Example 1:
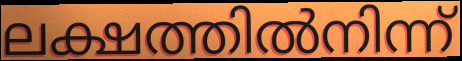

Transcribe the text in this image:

ലക്ഷത്തിൽനിന്ന്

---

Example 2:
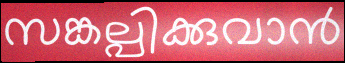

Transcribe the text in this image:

സങ്കല്പിക്കുവാൻ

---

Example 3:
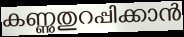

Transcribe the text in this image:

കണ്ണുതുറപ്പിക്കാൻ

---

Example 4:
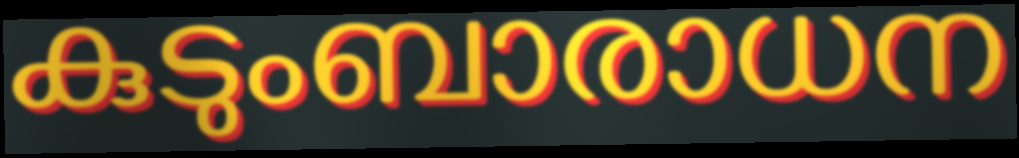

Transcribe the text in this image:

കുടുംബാരാധന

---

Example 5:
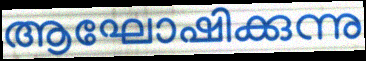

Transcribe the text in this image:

ആഘോഷിക്കുന്നു